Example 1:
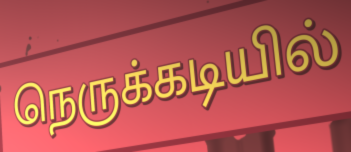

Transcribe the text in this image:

நெருக்கடியில்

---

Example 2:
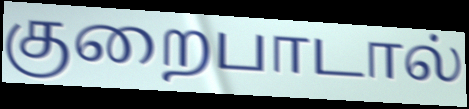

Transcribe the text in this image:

குறைபாடால்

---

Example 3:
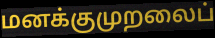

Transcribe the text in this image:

மனக்குமுறலைப்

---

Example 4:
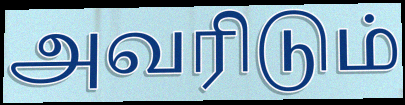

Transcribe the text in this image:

அவரிடும்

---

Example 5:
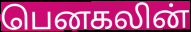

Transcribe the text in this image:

பெனகலின்